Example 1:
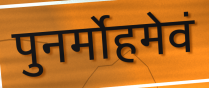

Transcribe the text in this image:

पुनर्मोहमेवं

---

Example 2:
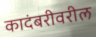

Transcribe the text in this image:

कादंबरीवरील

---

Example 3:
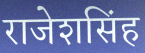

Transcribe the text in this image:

राजेशसिंह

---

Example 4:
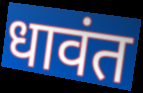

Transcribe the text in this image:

धावंत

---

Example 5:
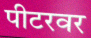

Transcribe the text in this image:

पीटरवर